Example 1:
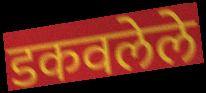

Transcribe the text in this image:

डकवलेले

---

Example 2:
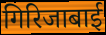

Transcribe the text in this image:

गिरिजाबाई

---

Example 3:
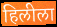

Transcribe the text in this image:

हिलीला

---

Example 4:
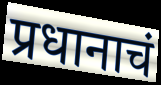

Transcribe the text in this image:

प्रधानाचं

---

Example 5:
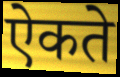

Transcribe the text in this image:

ऐकते